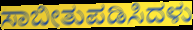
ಸಾಬೀತುಪಡಿಸಿದಳು